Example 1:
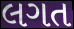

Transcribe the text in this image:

લગત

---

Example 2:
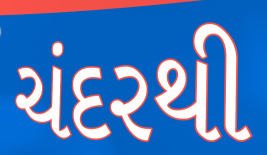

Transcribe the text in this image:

ચંદરથી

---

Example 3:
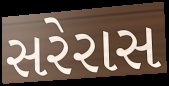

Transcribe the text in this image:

સરેરાસ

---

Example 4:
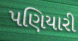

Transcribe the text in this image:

પણિયારી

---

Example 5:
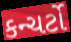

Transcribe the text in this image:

કન્ચર્ટો